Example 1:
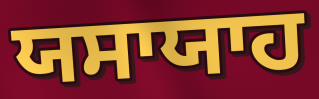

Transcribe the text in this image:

ਯਸਾਯਾਹ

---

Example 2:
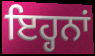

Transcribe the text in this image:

ਇਹ੍ਹਨਾਂ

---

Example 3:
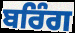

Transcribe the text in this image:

ਬਰਿੰਗ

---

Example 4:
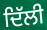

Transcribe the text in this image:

ਦਿੱਲੀ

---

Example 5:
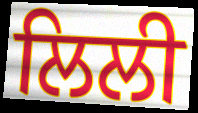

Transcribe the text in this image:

ਲਿਲੀ